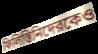
ফিলিস্তিনিদেরকেও